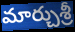
మార్చుశ్రీ